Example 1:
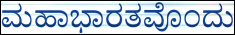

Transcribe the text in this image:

ಮಹಾಭಾರತವೊಂದು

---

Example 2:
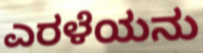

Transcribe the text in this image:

ಎರಳೆಯನು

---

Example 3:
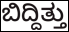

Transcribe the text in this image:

ಬಿದ್ದಿತ್ತು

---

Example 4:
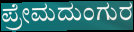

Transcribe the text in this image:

ಪ್ರೇಮದುಂಗುರ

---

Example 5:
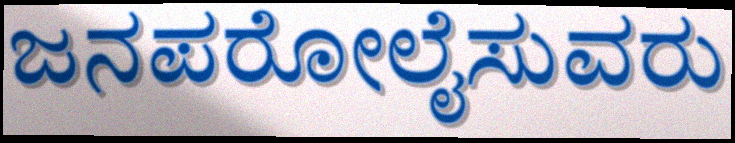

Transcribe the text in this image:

ಜನಪರೋಲೈಸುವರು